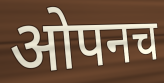
ओपनच